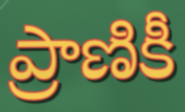
ప్రాణికీ